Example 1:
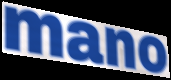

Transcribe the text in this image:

mano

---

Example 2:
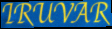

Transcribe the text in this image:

IRUVAR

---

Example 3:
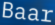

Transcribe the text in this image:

Baar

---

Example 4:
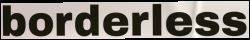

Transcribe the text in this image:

borderless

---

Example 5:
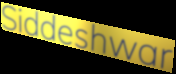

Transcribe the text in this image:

Siddeshwar